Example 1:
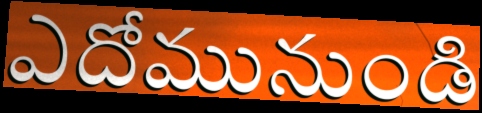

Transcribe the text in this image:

ఎదోమునుండి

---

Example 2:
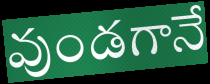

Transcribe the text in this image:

వుండగానే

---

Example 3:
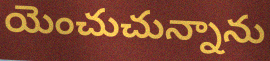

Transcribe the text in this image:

యెంచుచున్నాను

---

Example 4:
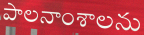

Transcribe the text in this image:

పాలనాంశాలను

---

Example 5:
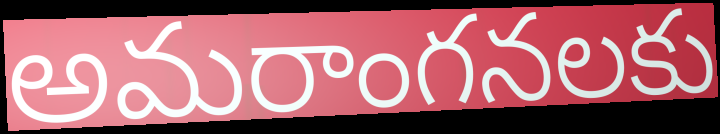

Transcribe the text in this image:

అమరాంగనలకు